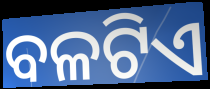
ବଳଟିଏ